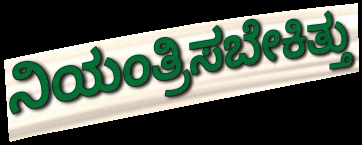
ನಿಯಂತ್ರಿಸಬೇಕಿತ್ತು